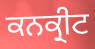
ਕਨਕ੍ਰੀਟ